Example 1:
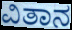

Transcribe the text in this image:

ವಿತಾನ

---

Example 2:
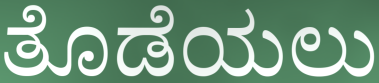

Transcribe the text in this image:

ತೊಡೆಯಲು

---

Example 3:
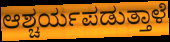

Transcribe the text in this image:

ಆಶ್ಚರ್ಯಪಡುತ್ತಾಳೆ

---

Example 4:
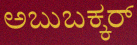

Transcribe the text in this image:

ಅಬುಬಕ್ಕರ್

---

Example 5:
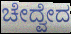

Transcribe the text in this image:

ಚೇದ್ವೇದ